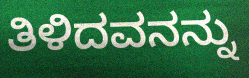
ತಿಳಿದವನನ್ನು